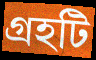
গ্রহটি